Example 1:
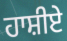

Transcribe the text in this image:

ਹਾਸ਼ੀਏ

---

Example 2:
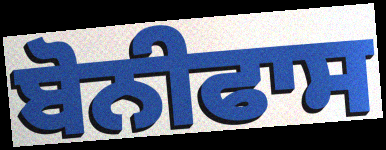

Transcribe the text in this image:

ਬੋਨੀਫਾਸ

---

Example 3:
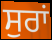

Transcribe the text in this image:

ਸੁਰਾਂ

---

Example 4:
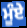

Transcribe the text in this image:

ਮੂੰਏ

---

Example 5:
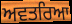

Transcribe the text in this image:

ਅਵਤਰਿਆ